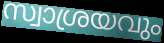
സ്വാശ്രയവും